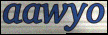
aawyo